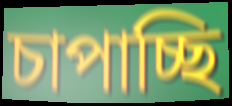
চাপাচ্ছি